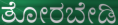
ತೋರಬೇಡಿ